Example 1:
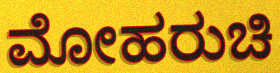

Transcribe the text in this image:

ಮೋಹರುಚಿ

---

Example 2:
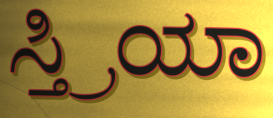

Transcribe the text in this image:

ಸ್ತ್ರಿಯಾ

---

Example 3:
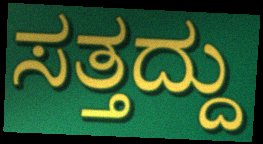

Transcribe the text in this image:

ಸತ್ತದ್ದು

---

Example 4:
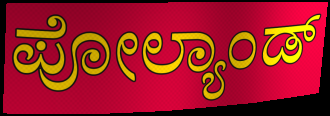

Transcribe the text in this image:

ಪೋಲ್ಯಾಂಡ್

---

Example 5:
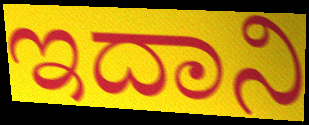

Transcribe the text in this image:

ಇದಾನಿ